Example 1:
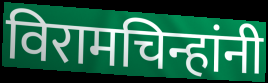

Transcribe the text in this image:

विरामचिन्हांनी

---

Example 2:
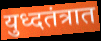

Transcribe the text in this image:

युध्दतंत्रात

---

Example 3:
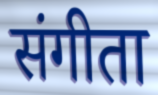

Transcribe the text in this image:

संगीता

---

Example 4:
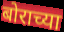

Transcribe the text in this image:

बोराच्या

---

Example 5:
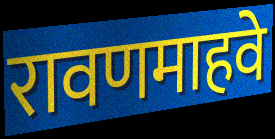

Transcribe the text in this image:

रावणमाहवे